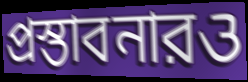
প্রস্তাবনারও